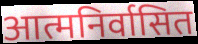
आत्मनिर्वासित